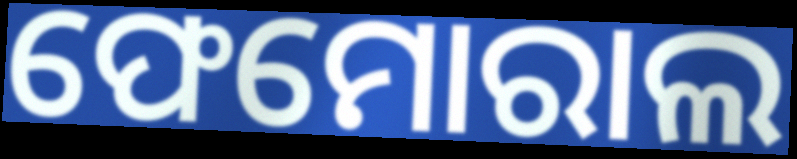
ଫେମୋରାଲ